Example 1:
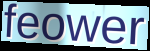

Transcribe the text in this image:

feower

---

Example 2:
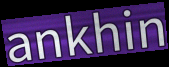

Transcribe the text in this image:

ankhin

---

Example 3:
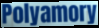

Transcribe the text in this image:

Polyamory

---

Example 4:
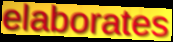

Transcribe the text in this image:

elaborates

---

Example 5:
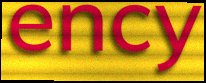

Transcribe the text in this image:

ency